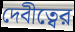
দেবীত্বের